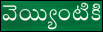
వెయ్యింటికి